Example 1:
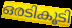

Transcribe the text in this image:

ഒരടികൂടി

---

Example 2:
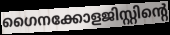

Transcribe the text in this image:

ഗൈനക്കോളജിസ്റ്റിന്റെ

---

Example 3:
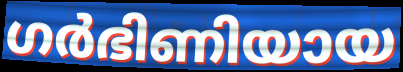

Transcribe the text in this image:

ഗർഭിണിയായ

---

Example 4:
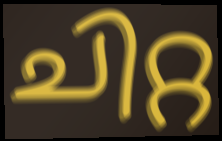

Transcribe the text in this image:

ചിറ്റ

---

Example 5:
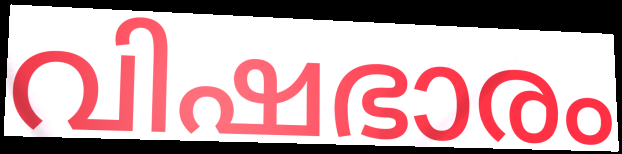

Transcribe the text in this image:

വിഷഭാരം